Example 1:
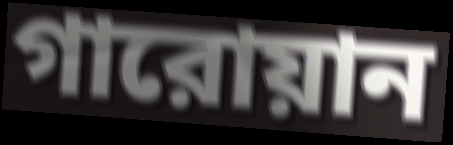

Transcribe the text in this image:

গারোয়ান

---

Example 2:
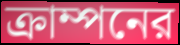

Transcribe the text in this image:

ক্রাম্পনের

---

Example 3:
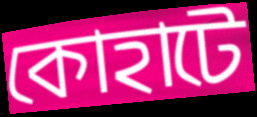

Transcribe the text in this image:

কোহাটে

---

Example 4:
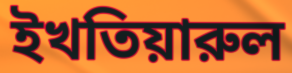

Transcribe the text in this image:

ইখতিয়ারুল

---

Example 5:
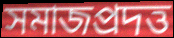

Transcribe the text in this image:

সমাজপ্রদত্ত